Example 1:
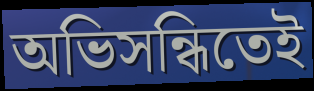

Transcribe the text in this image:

অভিসন্ধিতেই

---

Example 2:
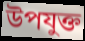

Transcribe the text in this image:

উপযুক্ত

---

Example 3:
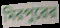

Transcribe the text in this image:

মিরপুরের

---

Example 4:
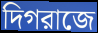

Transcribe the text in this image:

দিগরাজে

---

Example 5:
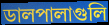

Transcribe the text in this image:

ডালপালাগুলি